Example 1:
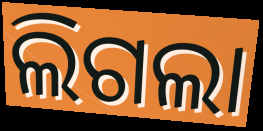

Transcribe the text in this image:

ଲିଗଲା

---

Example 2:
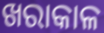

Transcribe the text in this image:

ଖରାକାଳ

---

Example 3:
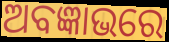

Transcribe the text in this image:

ଅବଜ୍ଞାଭରେ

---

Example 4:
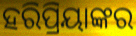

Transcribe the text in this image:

ହରିପ୍ରିୟାଙ୍କର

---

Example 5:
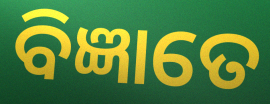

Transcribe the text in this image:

ବିଜ୍ଞାତେ